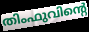
തിംഫുവിന്റെ